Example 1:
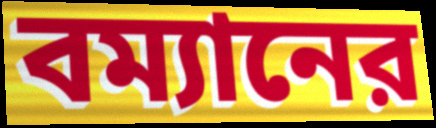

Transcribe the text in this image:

বম্যানের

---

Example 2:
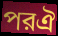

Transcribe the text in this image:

পরঐ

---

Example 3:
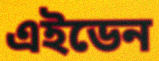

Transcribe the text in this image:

এইডেন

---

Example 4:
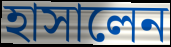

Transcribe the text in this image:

হাসালেন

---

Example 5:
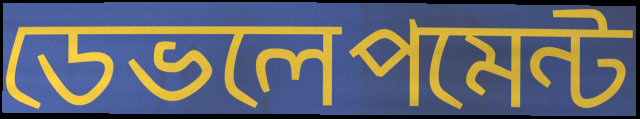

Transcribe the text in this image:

ডেভলেপমেন্ট